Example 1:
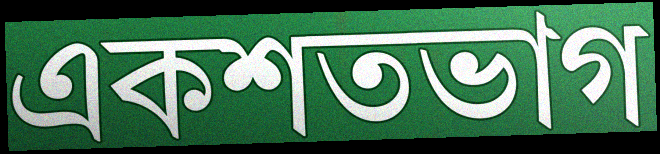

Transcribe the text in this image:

একশতভাগ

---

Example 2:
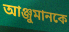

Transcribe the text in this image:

আঞ্জুমানকে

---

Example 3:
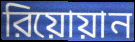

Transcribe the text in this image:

রিয়োয়ান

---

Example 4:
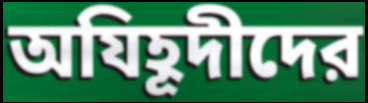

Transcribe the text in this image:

অযিহূদীদের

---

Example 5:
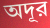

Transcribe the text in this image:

অদূর